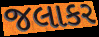
જલાકર